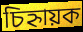
চিহ্নায়ক